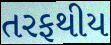
તરફથીય